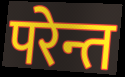
परेन्त